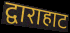
द्वाराहाट